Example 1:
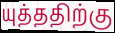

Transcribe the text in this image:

யுத்ததிற்கு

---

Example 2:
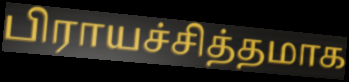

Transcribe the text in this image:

பிராயச்சித்தமாக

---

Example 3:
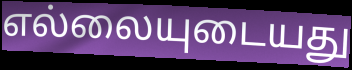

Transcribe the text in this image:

எல்லையுடையது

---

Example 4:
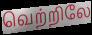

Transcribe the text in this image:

வெற்றிலே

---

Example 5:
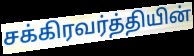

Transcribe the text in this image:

சக்கிரவர்த்தியின்